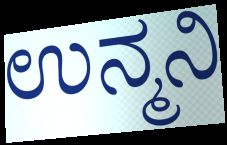
ಉನ್ಮನಿ